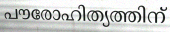
പൗരോഹിത്യത്തിന്